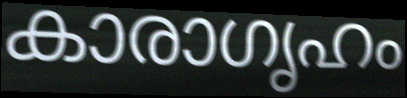
കാരാഗൃഹം